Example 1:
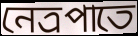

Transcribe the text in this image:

নেত্রপাতে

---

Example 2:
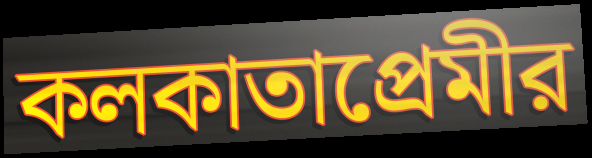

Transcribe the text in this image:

কলকাতাপ্রেমীর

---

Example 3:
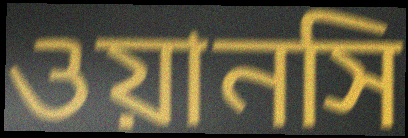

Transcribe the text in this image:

ওয়ানসি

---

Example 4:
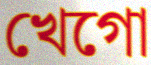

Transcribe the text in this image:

খেগো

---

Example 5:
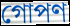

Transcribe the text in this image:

গোপণ